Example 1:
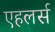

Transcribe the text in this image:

एहलर्स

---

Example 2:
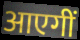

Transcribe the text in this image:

आएगीं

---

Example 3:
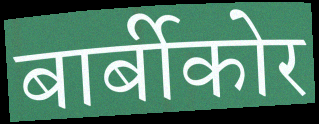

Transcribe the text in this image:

बार्बीकोर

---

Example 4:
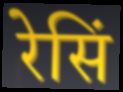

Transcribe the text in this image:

रेसिं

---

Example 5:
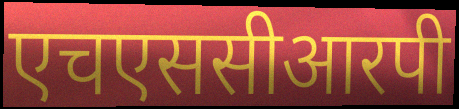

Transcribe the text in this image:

एचएससीआरपी